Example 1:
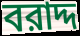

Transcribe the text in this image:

বরাদ্দ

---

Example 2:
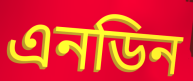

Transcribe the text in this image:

এনডিন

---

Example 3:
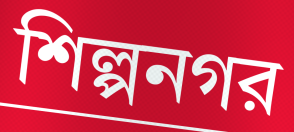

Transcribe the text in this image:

শিল্পনগর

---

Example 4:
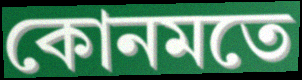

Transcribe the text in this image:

কোনমতে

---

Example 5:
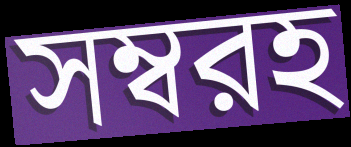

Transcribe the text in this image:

সম্বরহ